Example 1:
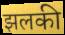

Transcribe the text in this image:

झलकी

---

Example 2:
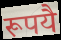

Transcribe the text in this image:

रूपयै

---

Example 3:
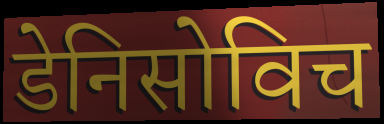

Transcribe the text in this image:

डेनिसोविच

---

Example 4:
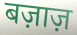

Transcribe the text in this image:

बज़ाज़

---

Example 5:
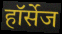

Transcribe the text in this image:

हॉर्सेज